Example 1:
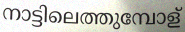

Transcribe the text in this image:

നാട്ടിലെത്തുമ്പോള്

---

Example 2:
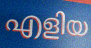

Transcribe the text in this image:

എളിയ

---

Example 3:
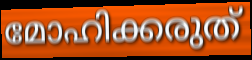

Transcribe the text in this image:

മോഹിക്കരുത്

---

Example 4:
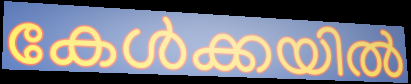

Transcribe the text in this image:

കേൾക്കയിൽ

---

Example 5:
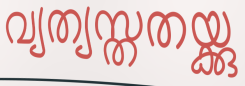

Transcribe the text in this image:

വ്യത്യസ്തതയ്ക്കു